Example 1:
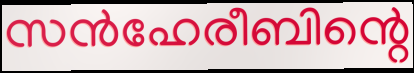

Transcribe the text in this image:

സൻഹേരീബിന്റെ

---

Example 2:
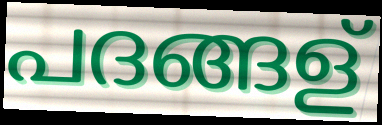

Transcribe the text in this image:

പദങ്ങള്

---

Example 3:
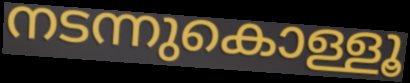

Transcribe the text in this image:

നടന്നുകൊള്ളൂ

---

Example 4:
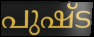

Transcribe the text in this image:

പുഷ്ട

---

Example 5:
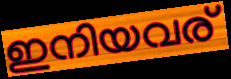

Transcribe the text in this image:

ഇനിയവര്